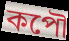
কপৌ